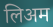
लिअम